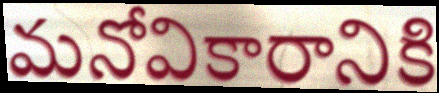
మనోవికారానికి